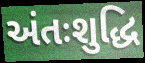
અંતઃશુદ્ધિ